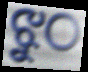
ଝୁଠ